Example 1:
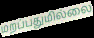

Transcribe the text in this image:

மறப்பதுமில்லை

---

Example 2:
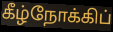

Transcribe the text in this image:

கீழ்நோக்கிப்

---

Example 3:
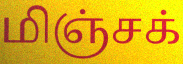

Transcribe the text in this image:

மிஞ்சக்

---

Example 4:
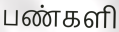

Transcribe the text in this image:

பண்களி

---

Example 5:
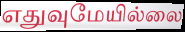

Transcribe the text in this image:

எதுவுமேயில்லை